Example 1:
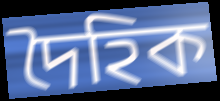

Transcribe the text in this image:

দৈহিক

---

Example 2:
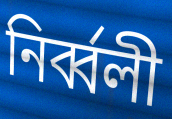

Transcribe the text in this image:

নিৰ্ব্বলী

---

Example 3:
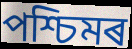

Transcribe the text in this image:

পশ্চিমৰ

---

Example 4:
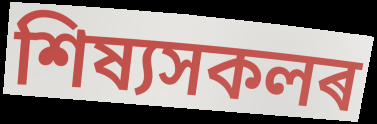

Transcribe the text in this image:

শিষ্যসকলৰ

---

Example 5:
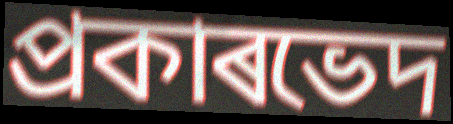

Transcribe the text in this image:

প্ৰকাৰভেদ